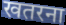
खतरना